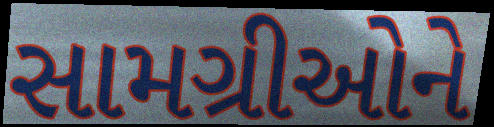
સામગ્રીઓને